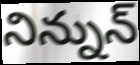
నిన్నున్